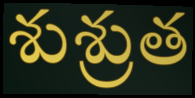
శుశ్రుత